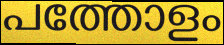
പത്തോളം